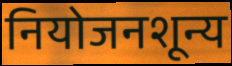
नियोजनशून्य